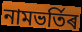
নামভৰ্তিৰ